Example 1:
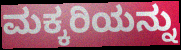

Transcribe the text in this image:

ಮಕ್ಕರಿಯನ್ನು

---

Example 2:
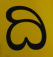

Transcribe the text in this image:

ದಿ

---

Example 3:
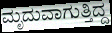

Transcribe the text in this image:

ಮೃದುವಾಗುತ್ತಿದ್ದ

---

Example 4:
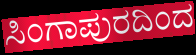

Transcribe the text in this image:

ಸಿಂಗಾಪುರದಿಂದ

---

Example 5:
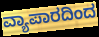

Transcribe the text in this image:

ವ್ಯಾಪಾರದಿಂದ